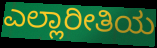
ಎಲ್ಲಾರೀತಿಯ